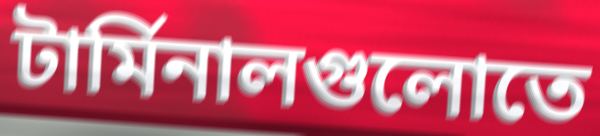
টার্মিনালগুলোতে